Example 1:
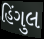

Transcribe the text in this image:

હિંગુલ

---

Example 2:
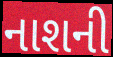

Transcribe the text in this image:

નાશની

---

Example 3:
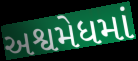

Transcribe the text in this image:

અશ્વમેધમાં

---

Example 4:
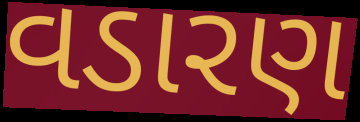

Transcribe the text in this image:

વડારણ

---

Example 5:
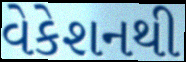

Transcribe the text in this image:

વેકેશનથી